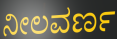
ನೀಲವರ್ಣ